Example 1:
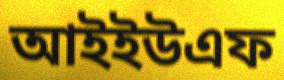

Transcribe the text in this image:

আইইউএফ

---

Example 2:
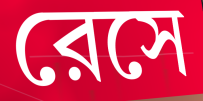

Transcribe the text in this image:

রেসে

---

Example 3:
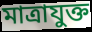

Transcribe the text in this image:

মাত্রাযুক্ত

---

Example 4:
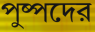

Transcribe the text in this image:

পুষ্পদের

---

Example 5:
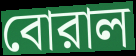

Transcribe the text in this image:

বোরাল